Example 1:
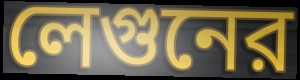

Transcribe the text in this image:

লেগুনের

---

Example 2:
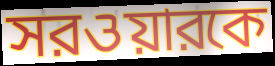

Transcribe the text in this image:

সরওয়ারকে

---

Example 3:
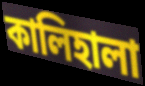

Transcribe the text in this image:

কালিহালা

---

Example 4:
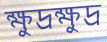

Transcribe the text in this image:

ক্ষুদ্রক্ষুদ্র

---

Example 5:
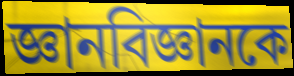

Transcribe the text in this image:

জ্ঞানবিজ্ঞানকে